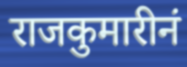
राजकुमारीनं